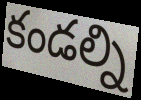
కండల్ని